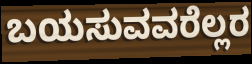
ಬಯಸುವವರೆಲ್ಲರ